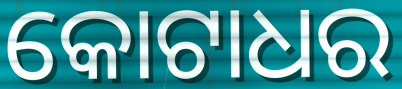
କୋଟାଧର